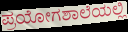
ಪ್ರಯೋಗಶಾಲೆಯಲ್ಲಿ